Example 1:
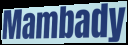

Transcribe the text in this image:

Mambady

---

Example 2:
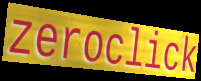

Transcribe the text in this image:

zeroclick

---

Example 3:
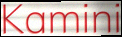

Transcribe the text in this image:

Kamini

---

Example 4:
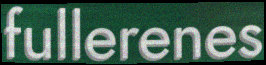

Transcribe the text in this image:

fullerenes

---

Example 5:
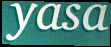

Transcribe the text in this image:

yasa